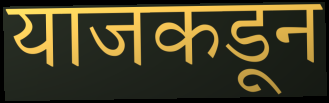
याजकडून